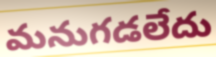
మనుగడలేదు